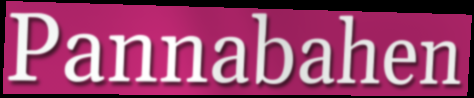
Pannabahen